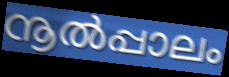
നൂൽപ്പാലം